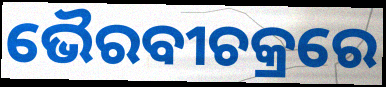
ଭୈରବୀଚକ୍ରରେ